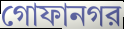
গোফানগর